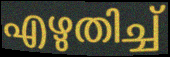
എഴുതിച്ച്